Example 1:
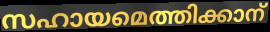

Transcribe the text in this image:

സഹായമെത്തിക്കാന്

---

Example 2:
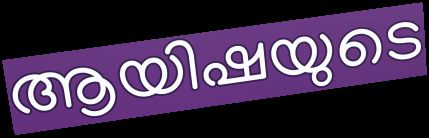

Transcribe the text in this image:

ആയിഷയുടെ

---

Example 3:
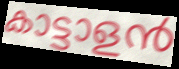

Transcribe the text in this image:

കാട്ടാളൻ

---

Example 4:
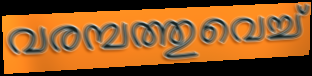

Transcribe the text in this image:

വരമ്പത്തുവെച്ച്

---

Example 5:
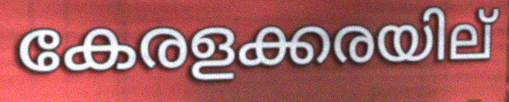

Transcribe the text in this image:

കേരളക്കരയില്